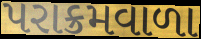
પરાક્રમવાળા